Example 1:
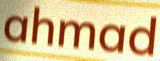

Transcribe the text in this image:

ahmad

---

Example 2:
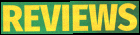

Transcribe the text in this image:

REVIEWS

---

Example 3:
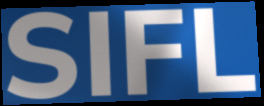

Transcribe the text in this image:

SIFL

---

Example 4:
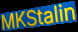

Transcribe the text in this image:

MKStalin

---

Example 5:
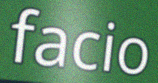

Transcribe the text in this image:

facio